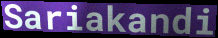
Sariakandi